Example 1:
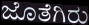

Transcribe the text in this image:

ಜೊತೆಗಿರು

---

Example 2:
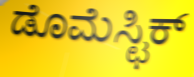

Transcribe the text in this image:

ಡೊಮೆಸ್ಟಿಕ್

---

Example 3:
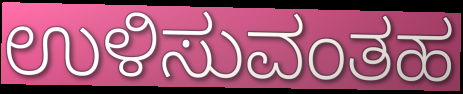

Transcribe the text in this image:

ಉಳಿಸುವಂತಹ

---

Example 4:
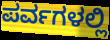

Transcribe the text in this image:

ಪರ್ವಗಳಲ್ಲಿ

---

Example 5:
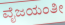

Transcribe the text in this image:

ವೈಜಯಂತೀ